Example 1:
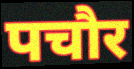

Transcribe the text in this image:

पचौर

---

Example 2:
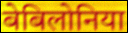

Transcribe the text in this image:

बेबिलोनिया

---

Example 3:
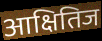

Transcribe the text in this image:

आक्षितिज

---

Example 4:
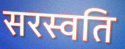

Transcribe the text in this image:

सरस्वति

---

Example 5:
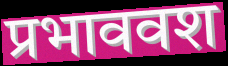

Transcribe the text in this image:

प्रभाववश